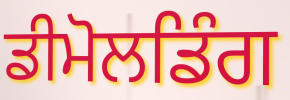
ਡੀਮੋਲਡਿੰਗ